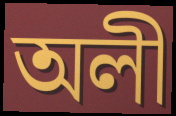
অলী